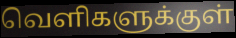
வெளிகளுக்குள்